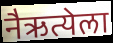
नैऋत्येला